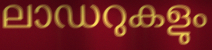
ലാഡറുകളും